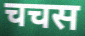
चचस